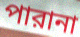
পারানা